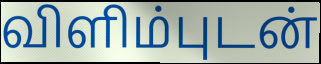
விளிம்புடன்